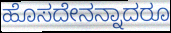
ಹೊಸದೇನನ್ನಾದರೂ